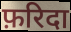
फ़रिदा